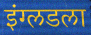
इंग्लडला